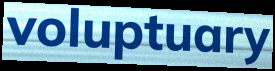
voluptuary